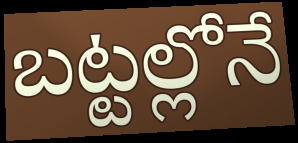
బట్టల్లోనే